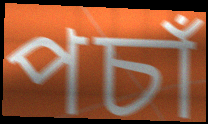
পচাঁ